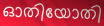
ഓതിയോതി